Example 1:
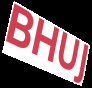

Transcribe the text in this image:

BHUJ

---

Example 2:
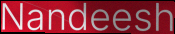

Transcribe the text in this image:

Nandeesh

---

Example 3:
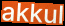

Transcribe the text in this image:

akkul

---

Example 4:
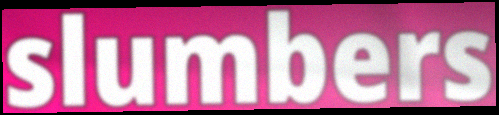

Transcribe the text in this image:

slumbers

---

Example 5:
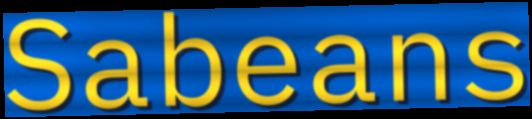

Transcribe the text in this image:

Sabeans